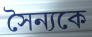
সৈন্যকে